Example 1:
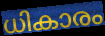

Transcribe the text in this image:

ധികാരം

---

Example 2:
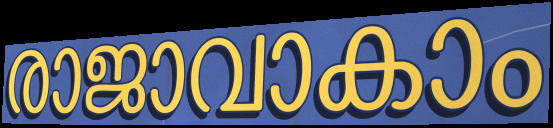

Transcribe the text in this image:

രാജാവാകാം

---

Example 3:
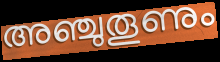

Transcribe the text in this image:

അഞ്ചുതൂണും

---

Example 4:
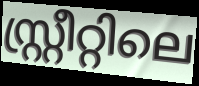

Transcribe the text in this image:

സ്റ്റ്രീറ്റിലെ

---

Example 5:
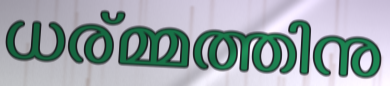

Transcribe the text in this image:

ധര്മ്മത്തിനു